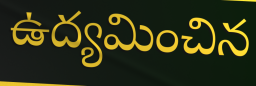
ఉద్యమించిన